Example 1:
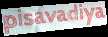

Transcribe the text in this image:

pisavadiya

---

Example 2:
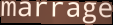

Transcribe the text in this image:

marrage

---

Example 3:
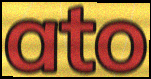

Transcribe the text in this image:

ato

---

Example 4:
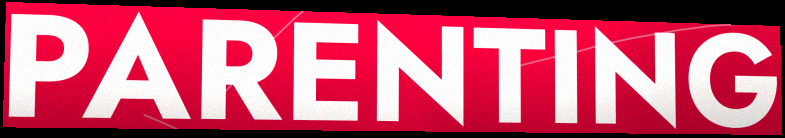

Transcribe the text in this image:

PARENTING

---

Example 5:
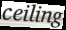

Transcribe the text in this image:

ceiling